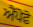
ਐਂਪੋਫੋ